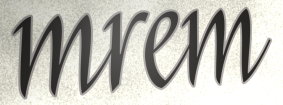
mrem